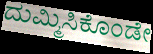
ದುಮ್ಮಿಸಿಕೊಂಡೇ